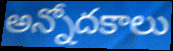
అన్నోదకాలు